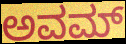
ಅವಮ್